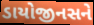
ડાયોજીનસને